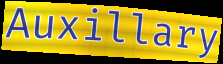
Auxillary